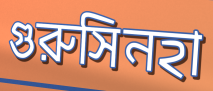
গুরুসিনহা